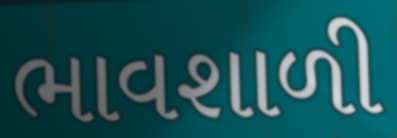
ભાવશાળી